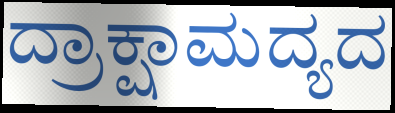
ದ್ರಾಕ್ಷಾಮದ್ಯದ